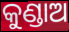
କୁଣ୍ଡାଅ